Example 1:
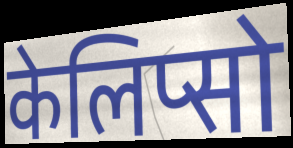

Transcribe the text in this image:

केलिप्सो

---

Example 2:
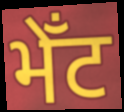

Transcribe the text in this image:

भेँट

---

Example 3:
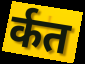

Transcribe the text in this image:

र्कत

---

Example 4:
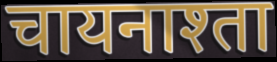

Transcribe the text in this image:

चायनाश्ता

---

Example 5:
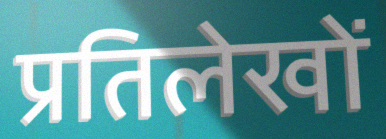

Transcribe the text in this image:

प्रतिलेखों